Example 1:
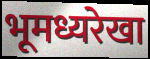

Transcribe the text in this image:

भूमध्यरेखा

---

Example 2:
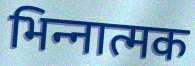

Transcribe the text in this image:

भिन्नात्मक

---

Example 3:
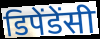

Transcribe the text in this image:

डिपेंडेंसी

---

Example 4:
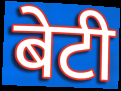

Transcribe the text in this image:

बेटी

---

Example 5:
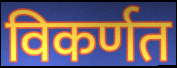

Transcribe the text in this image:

विकर्णत